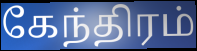
கேந்திரம்